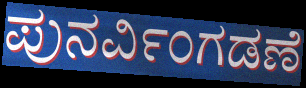
ಪುನರ್ವಿಂಗಡಣೆ